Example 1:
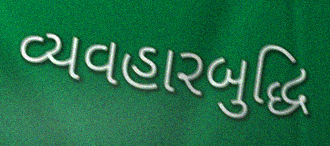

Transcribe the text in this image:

વ્યવહારબુદ્ધિ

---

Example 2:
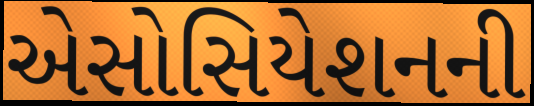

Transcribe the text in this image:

એસોસિયેશનની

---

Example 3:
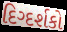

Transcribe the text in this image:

દિગ્દર્શકો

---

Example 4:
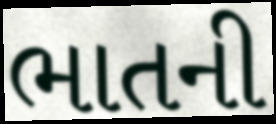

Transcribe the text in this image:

ભાતની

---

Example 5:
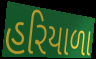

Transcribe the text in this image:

હરિયાળા